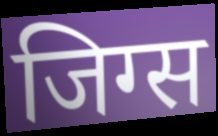
जिग्स